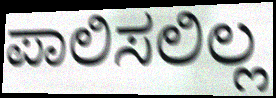
ಪಾಲಿಸಲಿಲ್ಲ